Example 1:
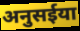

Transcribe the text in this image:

अनुसईया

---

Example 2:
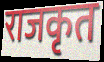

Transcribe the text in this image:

राजकृत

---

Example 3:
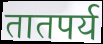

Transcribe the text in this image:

तातपर्य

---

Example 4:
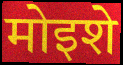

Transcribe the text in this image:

मोइशे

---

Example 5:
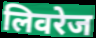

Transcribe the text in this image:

लिवरेज